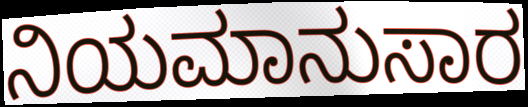
ನಿಯಮಾನುಸಾರ